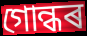
গোন্ধৰ